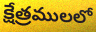
క్షేత్రములలో